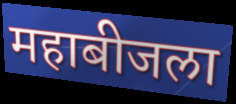
महाबीजला